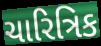
ચારિત્રિક